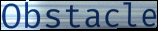
Obstacle